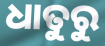
ଧାତୁରୁ